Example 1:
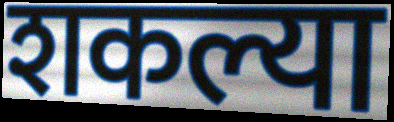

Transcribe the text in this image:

शकल्या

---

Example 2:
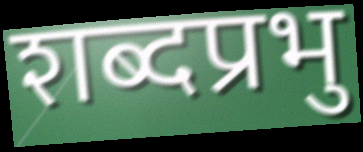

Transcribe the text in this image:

शब्दप्रभु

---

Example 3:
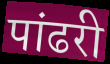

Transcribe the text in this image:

पांढरी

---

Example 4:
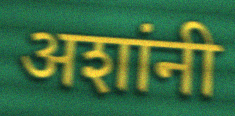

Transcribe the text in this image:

अशांनी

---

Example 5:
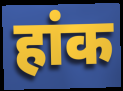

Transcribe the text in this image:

हांक